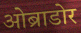
ओब्राडोर